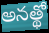
అనత్థో